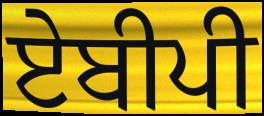
ਏਬੀਪੀ